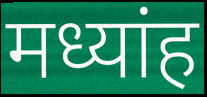
मध्यांह